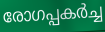
രോഗപ്പകർച്ച